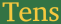
Tens